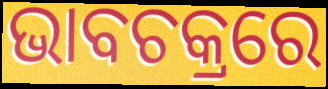
ଭାବଚକ୍ରରେ